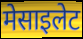
मेसाइलेट